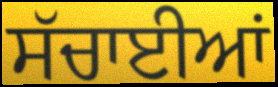
ਸੱਚਾਈਆਂ